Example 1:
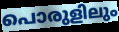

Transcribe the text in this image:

പൊരുളിലും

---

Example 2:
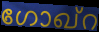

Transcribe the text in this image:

ഗോഖ്റ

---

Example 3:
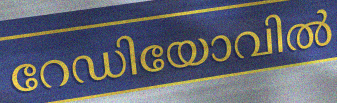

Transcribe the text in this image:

റേഡിയോവിൽ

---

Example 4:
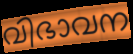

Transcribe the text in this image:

വിഭാവന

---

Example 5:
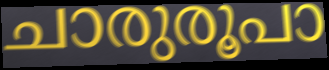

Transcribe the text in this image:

ചാരുരൂപാ